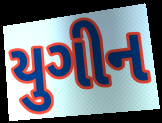
યુગીન